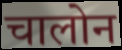
चालोन